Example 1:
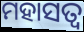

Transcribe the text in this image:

ମହାସତ୍ୱ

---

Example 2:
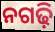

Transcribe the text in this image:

ନଗଢ଼ି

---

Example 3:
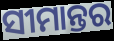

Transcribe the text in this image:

ସୀମାନ୍ତର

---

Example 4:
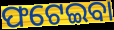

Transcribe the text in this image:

ଫଟେଇବା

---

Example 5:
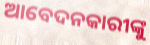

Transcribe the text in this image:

ଆବେଦନକାରୀଙ୍କୁ